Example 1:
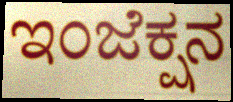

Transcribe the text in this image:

ಇಂಜೆಕ್ಷನ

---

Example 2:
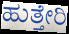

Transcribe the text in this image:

ಹುತ್ತೇರಿ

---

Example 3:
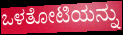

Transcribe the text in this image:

ಒಳತೋಟಿಯನ್ನು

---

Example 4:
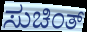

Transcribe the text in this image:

ಸುಚಿಂತ್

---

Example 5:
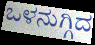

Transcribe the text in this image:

ಒಳನುಗ್ಗಿದ